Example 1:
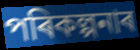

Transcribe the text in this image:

পৰিকল্পনাৰ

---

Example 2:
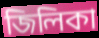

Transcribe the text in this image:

জিলিকা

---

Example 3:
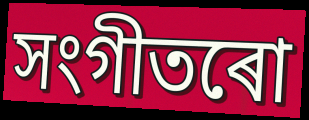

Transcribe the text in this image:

সংগীতৰো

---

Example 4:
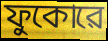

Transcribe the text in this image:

ফুকোৱে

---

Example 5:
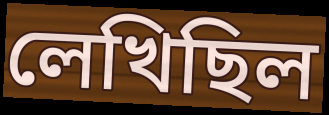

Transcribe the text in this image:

লেখিছিল